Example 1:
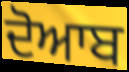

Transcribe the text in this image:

ਦੋਆਬ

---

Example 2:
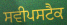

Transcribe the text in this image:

ਸਵੀਪਸਟੈਕ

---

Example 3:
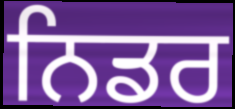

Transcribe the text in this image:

ਨਿਡਰ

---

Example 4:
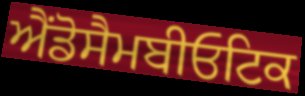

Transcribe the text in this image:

ਐਂਡੋਸੈਮਬੀਓਟਿਕ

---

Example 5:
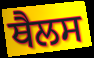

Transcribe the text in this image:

ਥੈਲਸ